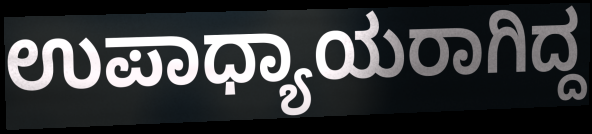
ಉಪಾಧ್ಯಾಯರಾಗಿದ್ದ